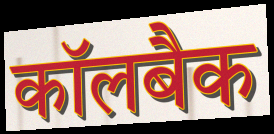
कॉलबैक